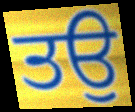
ਤਉ